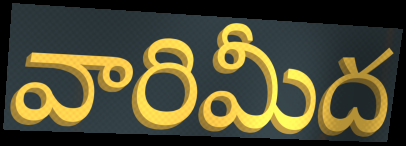
వారిమీద